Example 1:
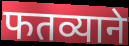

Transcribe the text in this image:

फतव्याने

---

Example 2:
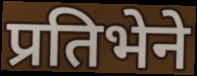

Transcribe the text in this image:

प्रतिभेने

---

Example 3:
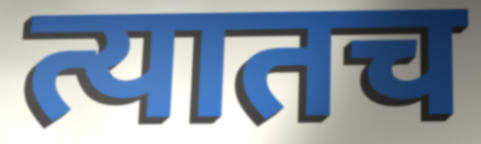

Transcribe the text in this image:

त्यातच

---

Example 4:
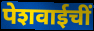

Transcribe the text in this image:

पेशवाईचीं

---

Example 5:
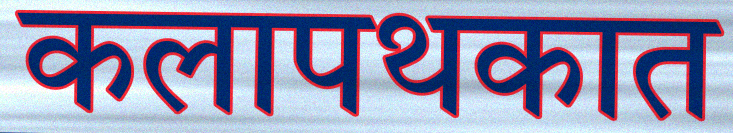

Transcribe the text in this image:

कलापथकात